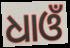
ଧାଓଁ